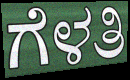
ಗೆಳತಿ